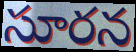
సూరన